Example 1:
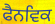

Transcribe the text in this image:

ਫੈਨਵਿਕ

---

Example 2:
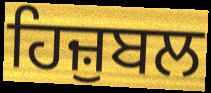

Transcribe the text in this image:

ਹਿਜ਼ੁਬਲ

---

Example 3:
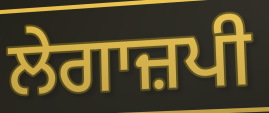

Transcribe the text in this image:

ਲੇਗਾਜ਼ਪੀ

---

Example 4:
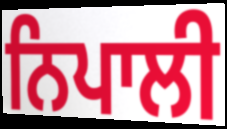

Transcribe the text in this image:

ਨਿਪਾਲੀ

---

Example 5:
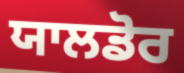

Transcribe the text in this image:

ਯਾਲਡੋਰ